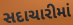
સદાચારીમાં